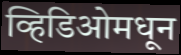
व्हिडिओमधून